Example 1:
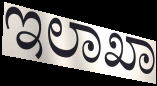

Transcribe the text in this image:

ಇಲಾಖಾ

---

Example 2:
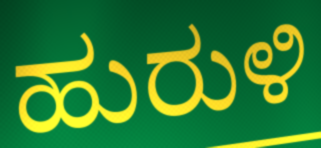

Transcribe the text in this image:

ಹುರುಳಿ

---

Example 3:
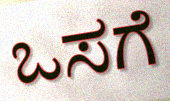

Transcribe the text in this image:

ಒಸಗೆ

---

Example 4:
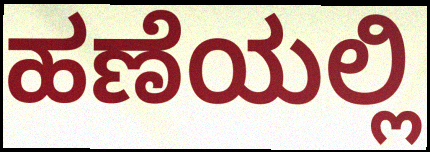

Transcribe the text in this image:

ಹಣೆಯಲ್ಲಿ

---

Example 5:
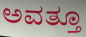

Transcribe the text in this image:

ಅವತ್ತೂ